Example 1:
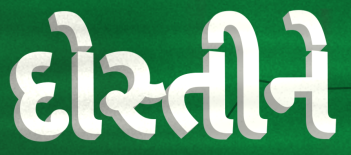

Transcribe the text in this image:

દોસ્તીને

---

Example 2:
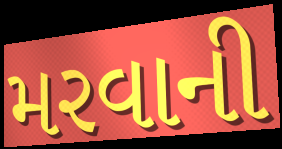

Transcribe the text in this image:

મરવાની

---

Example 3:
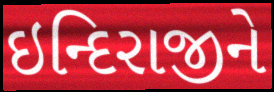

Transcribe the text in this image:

ઇન્દિરાજીને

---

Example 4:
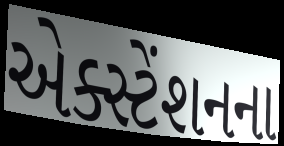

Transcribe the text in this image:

એક્સ્ટેંશનના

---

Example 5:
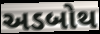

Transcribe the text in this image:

અડબોથ